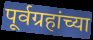
पूर्वग्रहांच्या